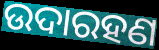
ଉଦାରହଣ